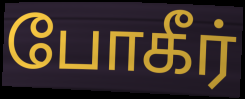
போகீர்